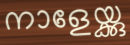
നാളേയ്ക്കു